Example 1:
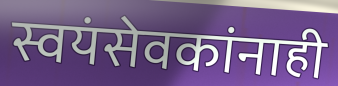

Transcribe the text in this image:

स्वयंसेवकांनाही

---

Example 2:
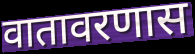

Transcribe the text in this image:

वातावरणास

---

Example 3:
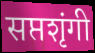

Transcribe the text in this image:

सप्तशृंगी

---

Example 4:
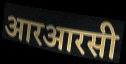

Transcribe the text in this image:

आरआरसी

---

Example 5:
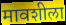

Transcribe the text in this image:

मावशीला